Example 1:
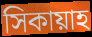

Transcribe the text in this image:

সিকায়াহ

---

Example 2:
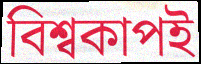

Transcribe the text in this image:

বিশ্বকাপই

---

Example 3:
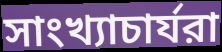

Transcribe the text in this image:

সাংখ্যাচার্যরা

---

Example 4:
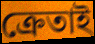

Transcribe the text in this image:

ক্রেতাই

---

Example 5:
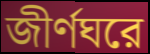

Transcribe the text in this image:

জীর্ণঘরে